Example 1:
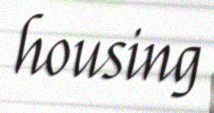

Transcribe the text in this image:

housing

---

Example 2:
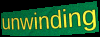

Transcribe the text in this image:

unwinding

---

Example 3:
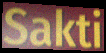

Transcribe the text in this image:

Sakti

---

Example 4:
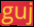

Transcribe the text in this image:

guj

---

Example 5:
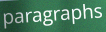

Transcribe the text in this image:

paragraphs